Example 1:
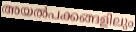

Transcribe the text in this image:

അയൽപക്കങ്ങളിലും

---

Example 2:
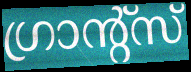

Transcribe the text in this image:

ഗ്രാന്റ്സ്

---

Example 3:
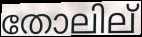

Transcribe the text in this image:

തോലില്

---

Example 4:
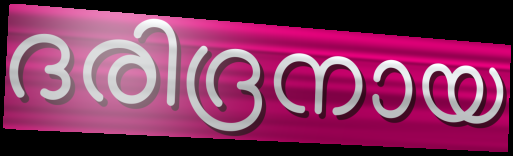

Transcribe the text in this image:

ദരിദ്രനായ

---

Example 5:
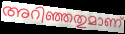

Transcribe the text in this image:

അറിഞ്ഞതുമാണ്